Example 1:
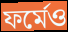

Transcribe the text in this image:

ফর্মেও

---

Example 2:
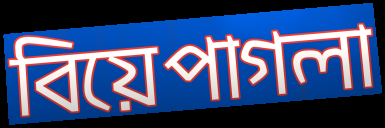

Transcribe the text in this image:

বিয়েপাগলা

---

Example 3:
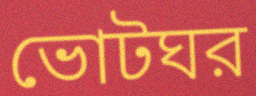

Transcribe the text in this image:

ভোটঘর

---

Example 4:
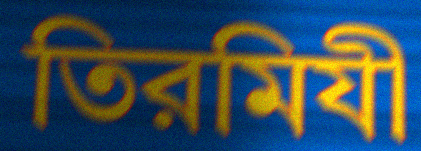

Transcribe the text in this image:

তিরমিযী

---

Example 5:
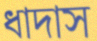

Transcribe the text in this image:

ধাদাস